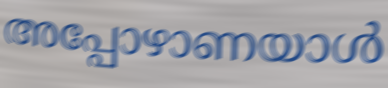
അപ്പോഴാണയാൾ